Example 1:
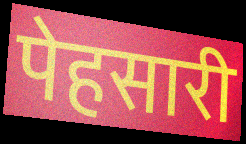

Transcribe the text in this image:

पेहसारी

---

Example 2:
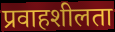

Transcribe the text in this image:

प्रवाहशीलता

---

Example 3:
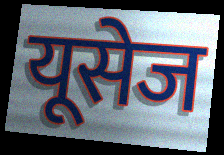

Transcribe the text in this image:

यूसेज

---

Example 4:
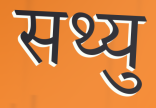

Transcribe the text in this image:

सथ्यु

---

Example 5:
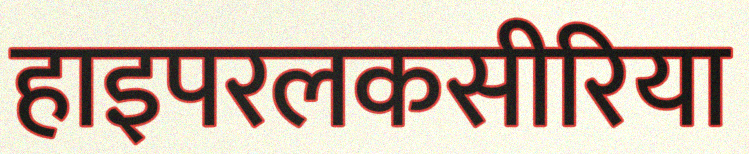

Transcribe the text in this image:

हाइपरलकसीरिया